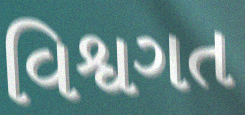
વિશ્વગત